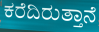
ಕರೆದಿರುತ್ತಾನೆ